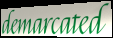
demarcated